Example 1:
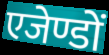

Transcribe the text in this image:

एजेण्डों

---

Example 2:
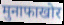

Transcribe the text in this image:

मुनाफाखोर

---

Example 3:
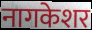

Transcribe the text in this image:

नागकेशर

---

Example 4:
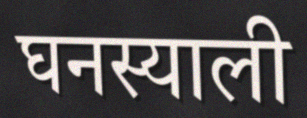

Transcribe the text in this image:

घनस्याली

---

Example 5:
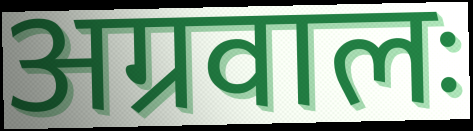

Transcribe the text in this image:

अग्रवालः